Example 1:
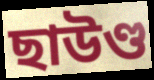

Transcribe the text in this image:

ছাউণ্ড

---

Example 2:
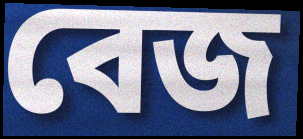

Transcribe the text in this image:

বেজ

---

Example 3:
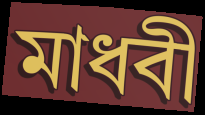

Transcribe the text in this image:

মাধবী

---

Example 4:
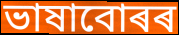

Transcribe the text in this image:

ভাষাবোৰৰ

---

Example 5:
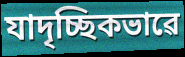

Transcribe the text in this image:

যাদৃচ্ছিকভাৱে